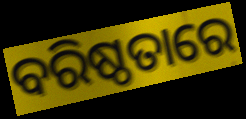
ବରିଷ୍ଠତାରେ